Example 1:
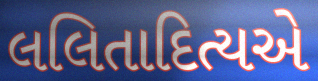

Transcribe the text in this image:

લલિતાદિત્યએ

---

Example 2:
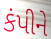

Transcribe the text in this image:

કંપીને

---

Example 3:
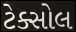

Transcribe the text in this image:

ટેક્સોલ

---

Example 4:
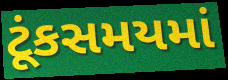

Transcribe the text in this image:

ટૂંકસમયમાં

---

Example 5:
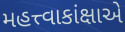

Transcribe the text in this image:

મહત્ત્વાકાંક્ષાએ